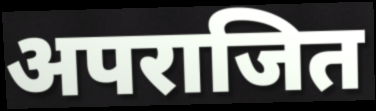
अपराजित